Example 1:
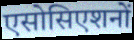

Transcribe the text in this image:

एसोसिएशनों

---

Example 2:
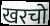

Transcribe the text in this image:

खरचो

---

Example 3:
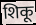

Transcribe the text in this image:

शिकू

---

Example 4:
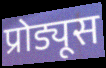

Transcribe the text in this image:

प्रोड्यूस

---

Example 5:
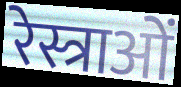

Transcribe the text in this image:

रेस्त्राओं